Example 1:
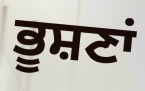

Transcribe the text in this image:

ਭੂਸ਼ਣਾਂ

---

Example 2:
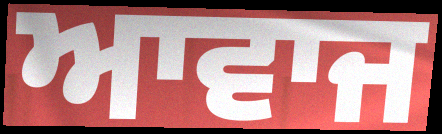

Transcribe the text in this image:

ਆਵਾਜ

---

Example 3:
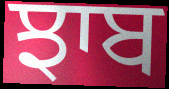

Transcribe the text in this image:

ਝਾਬ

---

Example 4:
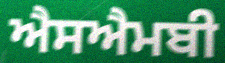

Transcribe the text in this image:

ਐਸਐਮਬੀ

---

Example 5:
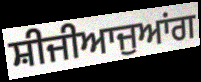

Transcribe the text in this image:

ਸ਼ੀਜੀਆਜੁਆਂਗ